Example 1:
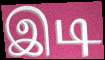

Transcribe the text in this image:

இடி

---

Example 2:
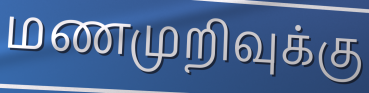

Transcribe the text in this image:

மணமுறிவுக்கு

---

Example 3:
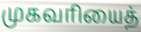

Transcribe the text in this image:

முகவரியைத்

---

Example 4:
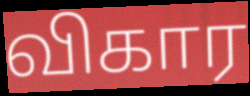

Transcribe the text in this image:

விகார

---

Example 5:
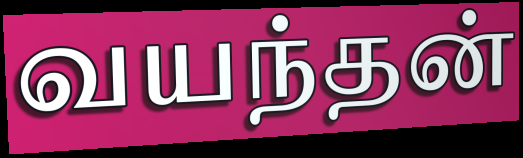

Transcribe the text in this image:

வயந்தன்